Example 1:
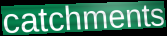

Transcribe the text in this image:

catchments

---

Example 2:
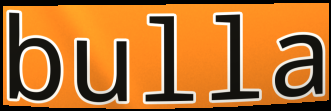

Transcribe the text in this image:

bulla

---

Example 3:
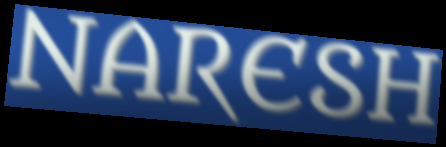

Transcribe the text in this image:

NARESH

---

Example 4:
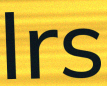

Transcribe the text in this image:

Irs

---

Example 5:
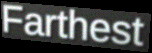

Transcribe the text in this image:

Farthest